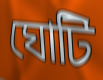
ঘোটি